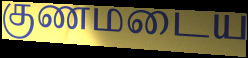
குணமடைய